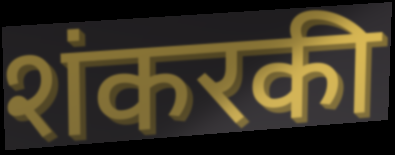
शंकरकी